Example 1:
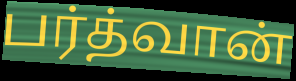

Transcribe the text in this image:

பர்த்வான்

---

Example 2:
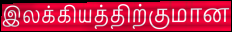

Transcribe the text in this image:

இலக்கியத்திற்குமான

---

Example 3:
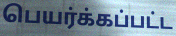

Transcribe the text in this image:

பெயர்க்கப்பட்ட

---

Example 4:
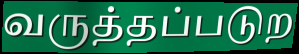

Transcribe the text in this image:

வருத்தப்படுற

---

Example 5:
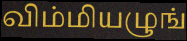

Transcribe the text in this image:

விம்மியழுங்